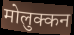
मोलुक्कन